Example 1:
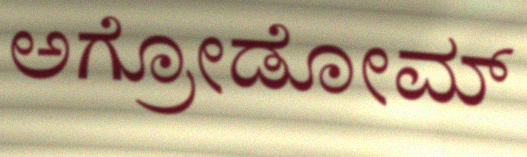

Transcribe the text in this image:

ಅಗ್ರೋಡೋಮ್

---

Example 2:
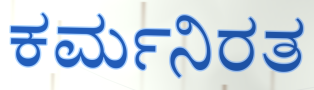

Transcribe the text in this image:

ಕರ್ಮನಿರತ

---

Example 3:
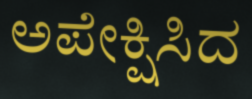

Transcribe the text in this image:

ಅಪೇಕ್ಷಿಸಿದ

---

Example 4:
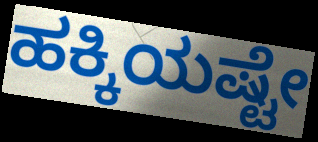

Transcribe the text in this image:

ಹಕ್ಕಿಯಷ್ಟೇ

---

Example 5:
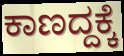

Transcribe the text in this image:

ಕಾಣದ್ದಕ್ಕೆ